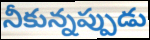
నీకున్నప్పుడు